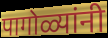
पागोळ्यांनी